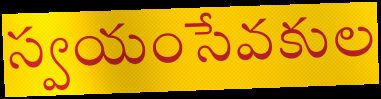
స్వయంసేవకుల